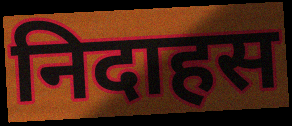
निदाहस